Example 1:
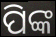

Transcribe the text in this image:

ପିଙ୍କ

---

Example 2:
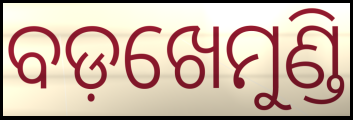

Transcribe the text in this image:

ବଡ଼ଖେମୁଣ୍ଡି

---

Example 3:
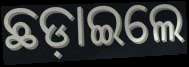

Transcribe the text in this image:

ଛଡ଼ାଇଲେ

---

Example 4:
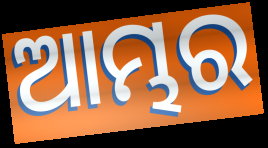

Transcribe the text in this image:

ଆମ୍ଭର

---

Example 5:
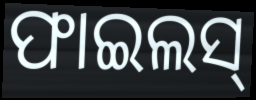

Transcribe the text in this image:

ଫାଇଲସ୍